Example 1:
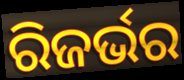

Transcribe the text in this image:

ରିଜର୍ଭର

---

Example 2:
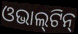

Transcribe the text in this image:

ଓଭାଲ୍‍ଟିନ୍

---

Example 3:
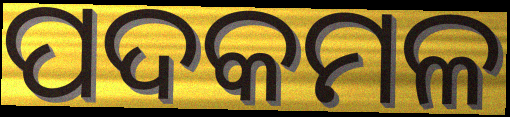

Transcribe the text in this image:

ପଦକମଳ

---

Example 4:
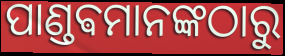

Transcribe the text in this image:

ପାଣ୍ଡଵମାନଙ୍କଠାରୁ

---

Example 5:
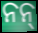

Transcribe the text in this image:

ନନ୍